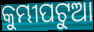
କୁମ୍ଭୀପଟୁଆ